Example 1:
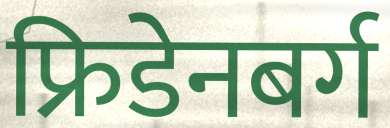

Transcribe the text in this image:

फ्रिडेनबर्ग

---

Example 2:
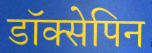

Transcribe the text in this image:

डॉक्सेपिन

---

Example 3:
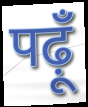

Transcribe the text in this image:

पढ़ूँ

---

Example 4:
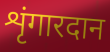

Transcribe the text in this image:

शृंगारदान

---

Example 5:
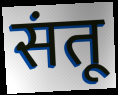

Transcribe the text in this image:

संतू